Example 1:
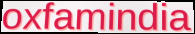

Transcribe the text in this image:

oxfamindia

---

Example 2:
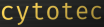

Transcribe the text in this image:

cytotec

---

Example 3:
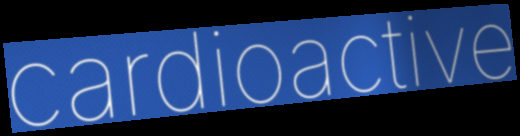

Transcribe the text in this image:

cardioactive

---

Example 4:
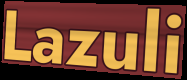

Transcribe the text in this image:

Lazuli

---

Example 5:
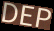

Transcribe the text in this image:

DEP